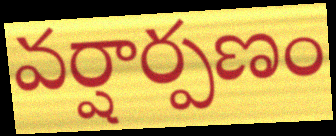
వర్షార్పణం